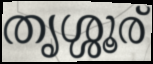
തൃശ്ശൂര്